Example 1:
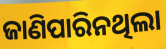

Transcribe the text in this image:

ଜାଣିପାରିନଥିଲା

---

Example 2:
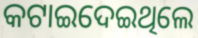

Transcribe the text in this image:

କଟାଇଦେଇଥିଲେ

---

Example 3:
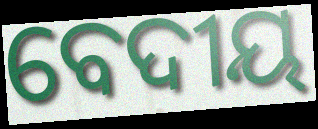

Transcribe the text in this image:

ବେଦୀୟ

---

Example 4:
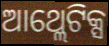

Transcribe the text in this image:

ଆଥ୍ଲେଟିକ୍ସ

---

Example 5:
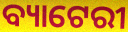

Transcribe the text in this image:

ବ୍ୟାଟେରୀ